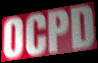
OCPD